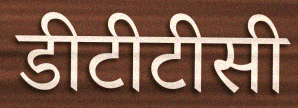
डीटीटीसी